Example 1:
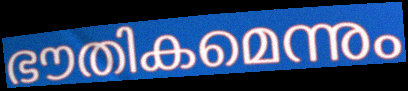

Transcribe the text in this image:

ഭൗതികമെന്നും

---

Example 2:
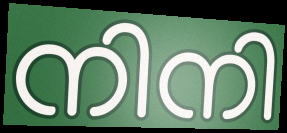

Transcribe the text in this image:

നിനി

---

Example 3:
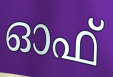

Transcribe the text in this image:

ഓഫ്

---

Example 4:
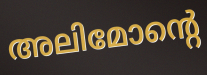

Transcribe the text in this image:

അലിമോന്റെ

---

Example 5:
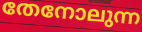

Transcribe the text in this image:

തേനോലുന്ന